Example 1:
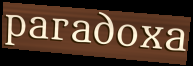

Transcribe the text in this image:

paradoxa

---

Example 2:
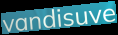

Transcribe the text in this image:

vandisuve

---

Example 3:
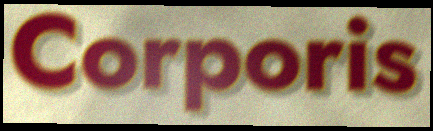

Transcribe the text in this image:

Corporis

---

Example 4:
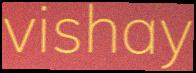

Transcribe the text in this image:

vishay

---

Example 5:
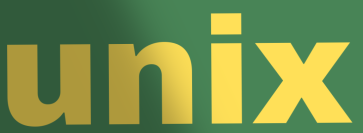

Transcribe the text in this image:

unix